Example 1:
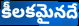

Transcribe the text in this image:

కీలకమైనదే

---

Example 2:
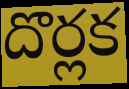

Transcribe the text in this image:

దొర్లక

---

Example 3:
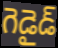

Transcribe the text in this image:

గెడైడ్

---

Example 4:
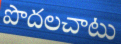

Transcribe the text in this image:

పొదలచాటు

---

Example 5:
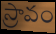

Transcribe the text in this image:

స్రావం